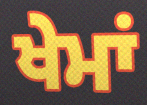
ਖੇਮਾਂ